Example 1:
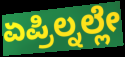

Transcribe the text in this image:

ಏಪ್ರಿಲ್ನಲ್ಲೇ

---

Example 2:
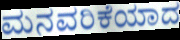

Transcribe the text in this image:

ಮನವರಿಕೆಯಾದ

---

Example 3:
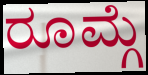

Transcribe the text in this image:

ರೂಮ್ಗೆ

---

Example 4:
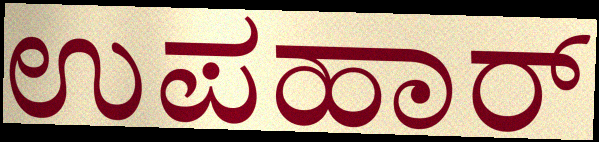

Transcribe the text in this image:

ಉಪಹಾರ್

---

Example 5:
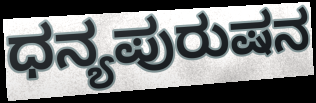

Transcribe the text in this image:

ಧನ್ಯಪುರುಷನ